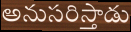
అనుసరిస్తాడు